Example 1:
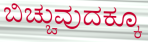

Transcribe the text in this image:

ಬಿಚ್ಚುವುದಕ್ಕೂ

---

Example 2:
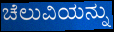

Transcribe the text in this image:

ಚೆಲುವಿಯನ್ನು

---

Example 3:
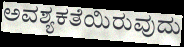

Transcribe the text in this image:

ಅವಶ್ಯಕತೆಯಿರುವುದು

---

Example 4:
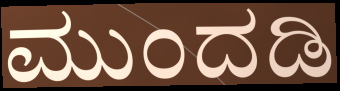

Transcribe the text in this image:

ಮುಂದಡಿ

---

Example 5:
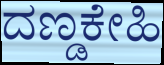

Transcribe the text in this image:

ದಣ್ಡಕೇಹಿ